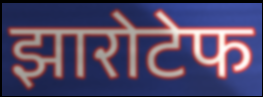
झारोटेफ